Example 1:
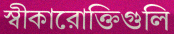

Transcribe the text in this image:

স্বীকারোক্তিগুলি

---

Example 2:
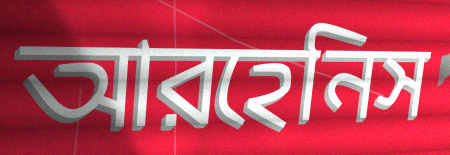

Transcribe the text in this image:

আরহেনিস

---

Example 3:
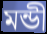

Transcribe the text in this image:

মন্ডী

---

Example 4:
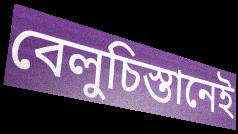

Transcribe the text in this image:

বেলুচিস্তানেই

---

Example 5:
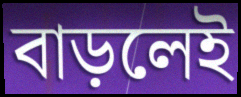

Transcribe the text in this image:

বাড়লেই